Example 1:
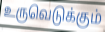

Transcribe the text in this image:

உருவெடுக்கும்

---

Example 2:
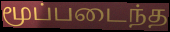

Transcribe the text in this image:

மூப்படைந்த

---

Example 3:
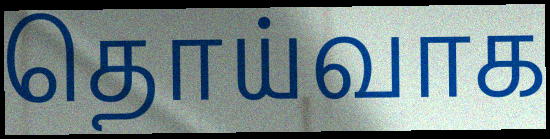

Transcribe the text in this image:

தொய்வாக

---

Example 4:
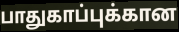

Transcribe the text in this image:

பாதுகாப்புக்கான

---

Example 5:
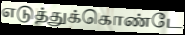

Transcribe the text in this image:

எடுத்துக்கொண்டே